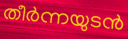
തീർന്നയുടൻ